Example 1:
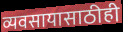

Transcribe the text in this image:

व्यवसायासाठीही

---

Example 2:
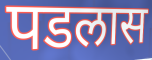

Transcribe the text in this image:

पडलास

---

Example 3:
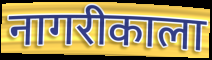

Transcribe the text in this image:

नागरीकाला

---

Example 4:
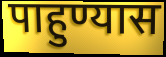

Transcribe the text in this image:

पाहुण्यास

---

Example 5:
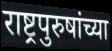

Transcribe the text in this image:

राष्ट्रपुरुषांच्या